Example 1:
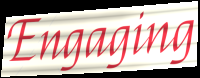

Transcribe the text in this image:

Engaging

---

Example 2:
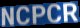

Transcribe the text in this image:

NCPCR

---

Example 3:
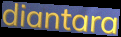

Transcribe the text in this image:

diantara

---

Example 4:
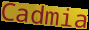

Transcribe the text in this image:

Cadmia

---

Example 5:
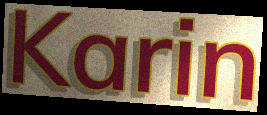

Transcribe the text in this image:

Karin